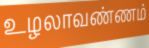
உழலாவண்ணம்